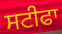
ਸਟੀਫਾ